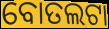
ବୋତଲଟା